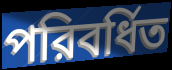
পরিবর্ধিত